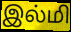
இல்மி